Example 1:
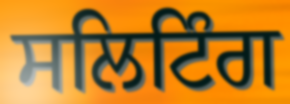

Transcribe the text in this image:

ਸਲਿਟਿੰਗ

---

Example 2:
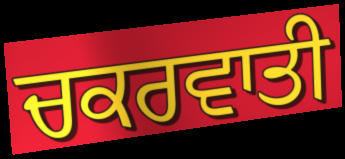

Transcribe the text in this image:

ਚਕਰਵਾਤੀ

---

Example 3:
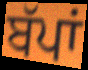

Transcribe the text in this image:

ਬੱਪਾਂ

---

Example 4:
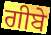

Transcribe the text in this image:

ਗੀਬੇ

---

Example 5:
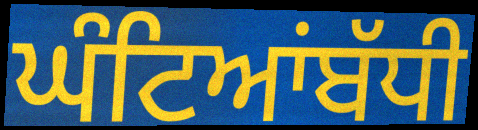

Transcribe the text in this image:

ਘੰਟਿਆਂਬੱਧੀ